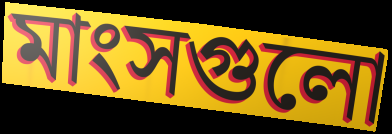
মাংসগুলো